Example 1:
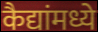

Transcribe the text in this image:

कैद्यांमध्ये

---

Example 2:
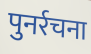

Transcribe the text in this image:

पुनर्रचना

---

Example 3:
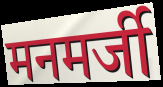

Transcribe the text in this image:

मनमर्जी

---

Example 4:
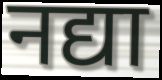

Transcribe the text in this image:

नद्या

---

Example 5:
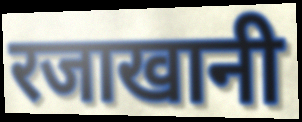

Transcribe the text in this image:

रजाखानी